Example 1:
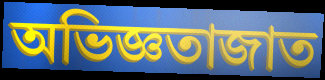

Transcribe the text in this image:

অভিজ্ঞতাজাত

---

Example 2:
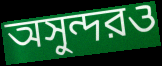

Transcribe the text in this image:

অসুন্দরও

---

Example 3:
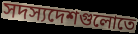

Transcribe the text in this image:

সদস্যদেশগুলোতে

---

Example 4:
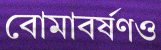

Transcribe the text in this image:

বোমাবর্ষণও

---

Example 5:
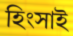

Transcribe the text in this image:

হিংসাই